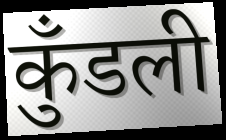
कुँडली